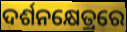
ଦର୍ଶନକ୍ଷେତ୍ରରେ